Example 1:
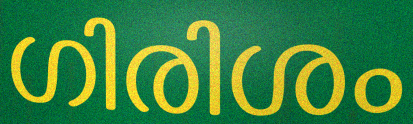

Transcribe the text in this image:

ഗിരിശം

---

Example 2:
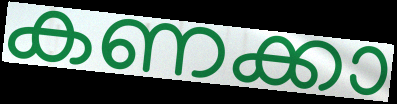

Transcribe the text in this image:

കണക്കാ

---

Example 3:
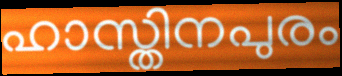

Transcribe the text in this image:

ഹാസ്തിനപുരം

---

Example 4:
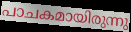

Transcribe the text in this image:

പാചകമായിരുന്നു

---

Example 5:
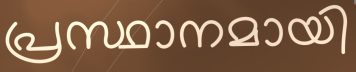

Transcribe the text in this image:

പ്രസ്ഥാനമായി